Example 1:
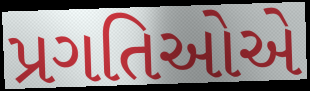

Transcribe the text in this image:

પ્રગતિઓએ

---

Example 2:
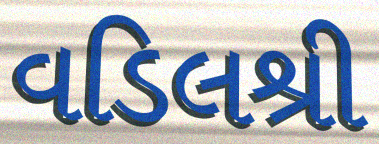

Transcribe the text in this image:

વડિલશ્રી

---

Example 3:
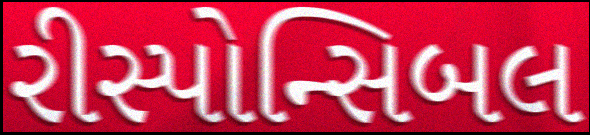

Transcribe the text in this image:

રીસ્પોન્સિબલ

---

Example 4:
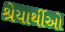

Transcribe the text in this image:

શ્રેયાર્થીઓ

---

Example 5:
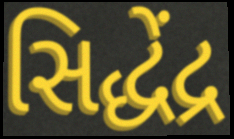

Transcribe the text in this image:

સિદ્ધેંદ્ર